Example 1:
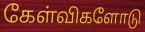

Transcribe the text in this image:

கேள்விகளோடு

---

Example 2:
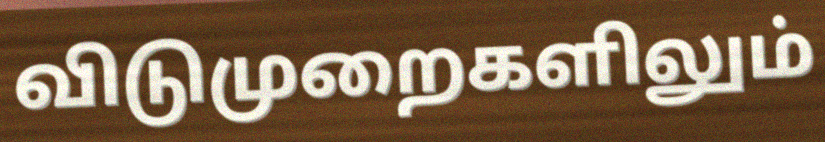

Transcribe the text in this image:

விடுமுறைகளிலும்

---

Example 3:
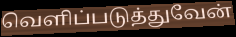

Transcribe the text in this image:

வெளிப்படுத்துவேன்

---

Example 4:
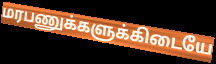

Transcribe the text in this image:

மரபணுக்களுக்கிடையே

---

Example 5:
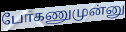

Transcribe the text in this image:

போகணுமுன்னு